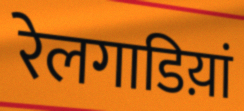
रेलगाडिय़ां